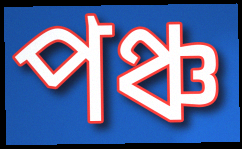
পঞ্চ